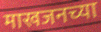
माखजनच्या